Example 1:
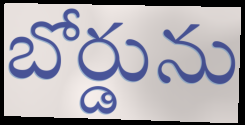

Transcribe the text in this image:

బోర్డును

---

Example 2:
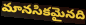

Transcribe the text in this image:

మానసికమైనది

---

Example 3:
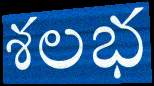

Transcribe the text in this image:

శలభ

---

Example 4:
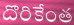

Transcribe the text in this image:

దొరికేంత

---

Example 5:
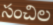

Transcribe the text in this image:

సంచిల